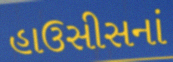
હાઉસીસનાં